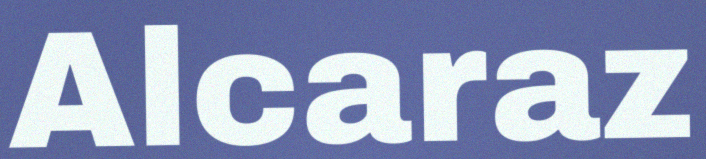
Alcaraz